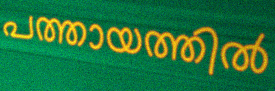
പത്തായത്തിൽ